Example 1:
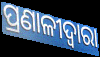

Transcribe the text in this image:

ପ୍ରଣାଳୀଦ୍ୱାରା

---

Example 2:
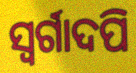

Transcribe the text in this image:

ସ୍ୱର୍ଗାଦପି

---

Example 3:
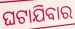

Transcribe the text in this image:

ଘଟାଯିବାର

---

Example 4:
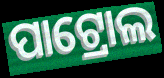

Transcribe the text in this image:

ପାଟ୍ରୋଲ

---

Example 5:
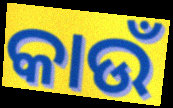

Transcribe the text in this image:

କାଉଁ